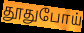
தூதுபோய்